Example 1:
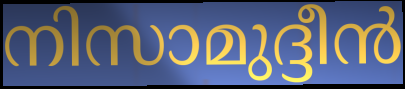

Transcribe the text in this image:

നിസാമുദ്ദീൻ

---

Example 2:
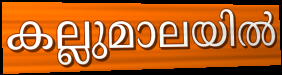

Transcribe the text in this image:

കല്ലുമാലയിൽ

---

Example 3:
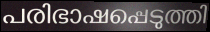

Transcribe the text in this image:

പരിഭാഷപ്പെടുത്തി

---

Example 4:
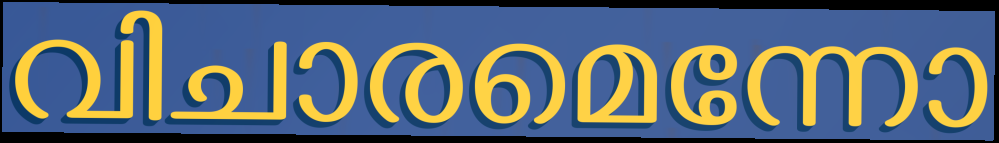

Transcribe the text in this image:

വിചാരമെന്നോ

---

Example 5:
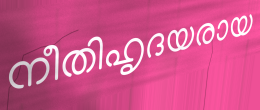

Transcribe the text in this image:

നീതിഹൃദയരായ